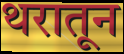
थरातून